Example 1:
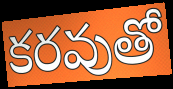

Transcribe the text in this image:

కరవుతో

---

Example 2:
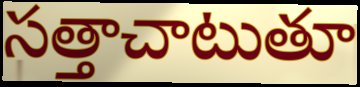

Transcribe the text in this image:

సత్తాచాటుతూ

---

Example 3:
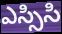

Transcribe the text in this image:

ఎస్సిసి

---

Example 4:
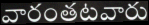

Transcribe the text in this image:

వారంతటవారు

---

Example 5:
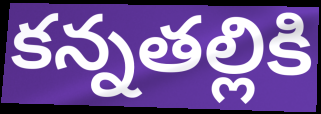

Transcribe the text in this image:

కన్నతల్లికి